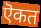
ऎकत